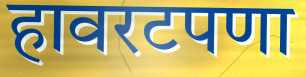
हावरटपणा